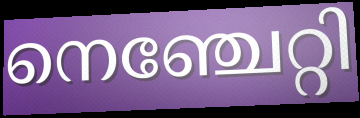
നെഞ്ചേറ്റി